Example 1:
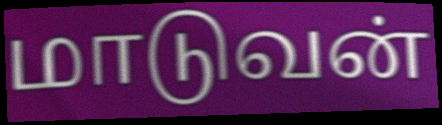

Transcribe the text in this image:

மாடுவன்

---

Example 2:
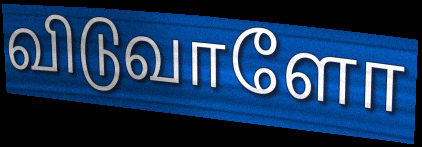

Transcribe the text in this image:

விடுவாளோ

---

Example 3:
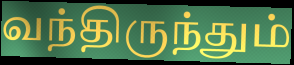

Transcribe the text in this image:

வந்திருந்தும்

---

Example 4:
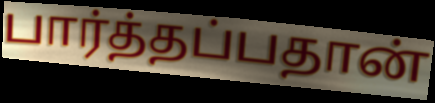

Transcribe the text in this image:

பார்த்தப்பதான்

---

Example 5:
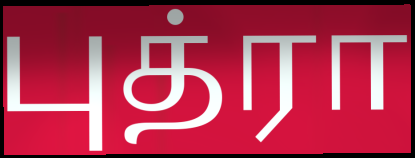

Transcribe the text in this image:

புத்ரா